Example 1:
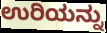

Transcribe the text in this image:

ಉರಿಯನ್ನು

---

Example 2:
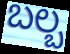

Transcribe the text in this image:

ಬಲ್ಬ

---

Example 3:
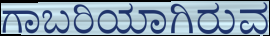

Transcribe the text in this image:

ಗಾಬರಿಯಾಗಿರುವ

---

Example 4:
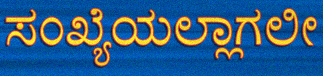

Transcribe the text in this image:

ಸಂಖ್ಯೆಯಲ್ಲಾಗಲೀ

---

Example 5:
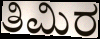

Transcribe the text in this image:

ತಿಮಿರ